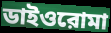
ডাইওরোমা